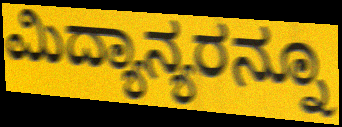
ಮಿದ್ಯಾನ್ಯರನ್ನೂ